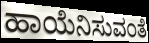
ಹಾಯೆನಿಸುವಂತೆ